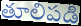
తూలిపడి